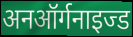
अनऑर्गनाइज्ड